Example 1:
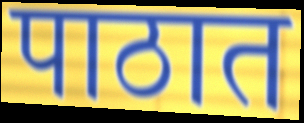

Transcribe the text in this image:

पाठात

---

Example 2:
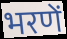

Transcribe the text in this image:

भरणें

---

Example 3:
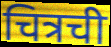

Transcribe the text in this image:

चित्रची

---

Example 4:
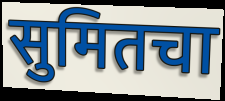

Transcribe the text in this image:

सुमितचा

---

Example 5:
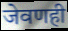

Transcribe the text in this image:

जेवणही